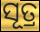
ସୂତ୍ର